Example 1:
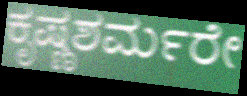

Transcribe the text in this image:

ಕೃಷ್ಣಶರ್ಮರೇ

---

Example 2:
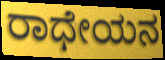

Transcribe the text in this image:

ರಾಧೇಯನ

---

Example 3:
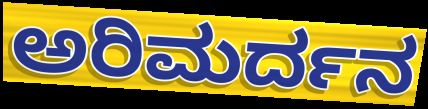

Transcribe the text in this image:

ಅರಿಮರ್ದನ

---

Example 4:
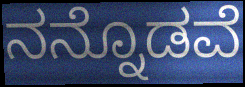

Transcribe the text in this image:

ನನ್ನೊಡವೆ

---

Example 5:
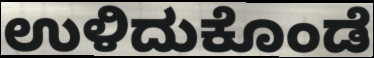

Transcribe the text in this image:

ಉಳಿದುಕೊಂಡೆ